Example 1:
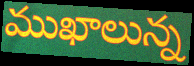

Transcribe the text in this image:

ముఖాలున్న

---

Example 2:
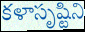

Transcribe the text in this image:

కళాసృష్టిని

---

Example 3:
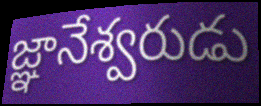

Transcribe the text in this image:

జ్ఞానేశ్వరుడు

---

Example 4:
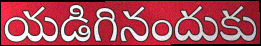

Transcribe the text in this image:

యడిగినందుకు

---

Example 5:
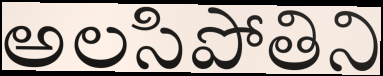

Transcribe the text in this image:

అలసిపోతిని